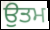
ਉਤਮ